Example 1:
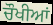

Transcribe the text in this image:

ਚੌਖੀਆਂ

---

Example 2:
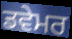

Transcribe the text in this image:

ਡਵੇਮਰ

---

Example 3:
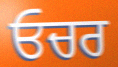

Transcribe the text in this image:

ਓਚਰ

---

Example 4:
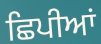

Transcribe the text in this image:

ਛਿਪੀਆਂ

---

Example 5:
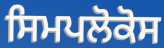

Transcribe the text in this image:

ਸਿਮਪਲੋਕੋਸ